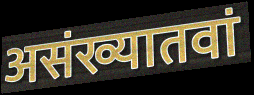
असंख्यातवां